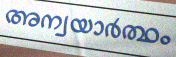
അന്വയാർത്ഥം